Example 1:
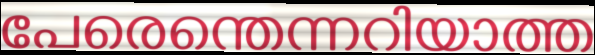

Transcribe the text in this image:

പേരെന്തെന്നറിയാത്ത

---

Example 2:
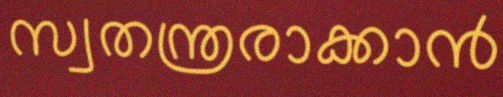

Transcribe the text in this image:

സ്വതന്ത്രരാക്കാൻ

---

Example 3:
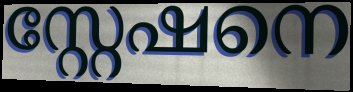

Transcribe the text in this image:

സ്റ്റേഷനെ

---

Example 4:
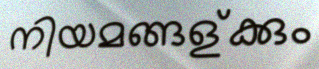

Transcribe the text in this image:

നിയമങ്ങള്ക്കും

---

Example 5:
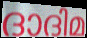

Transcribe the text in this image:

ദാദിമ